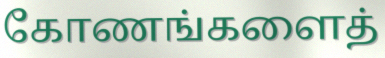
கோணங்களைத்